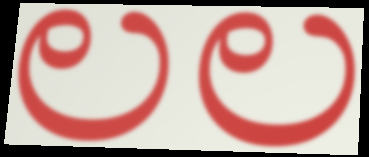
ಲಲ